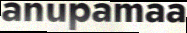
anupamaa